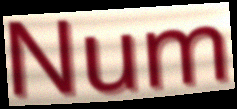
Num